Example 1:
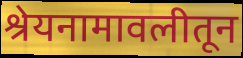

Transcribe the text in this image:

श्रेयनामावलीतून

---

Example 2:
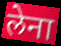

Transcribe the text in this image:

लेना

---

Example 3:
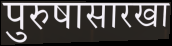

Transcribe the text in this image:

पुरुषासारखा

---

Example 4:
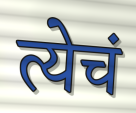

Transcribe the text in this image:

त्येचं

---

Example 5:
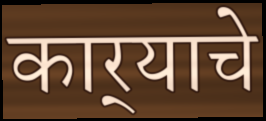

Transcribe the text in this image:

कार्याचे